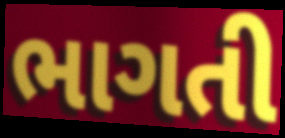
ભાગતી